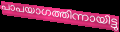
പാപയാഗത്തിന്നായിട്ടു